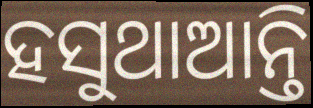
ହସୁଥାଆନ୍ତି